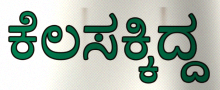
ಕೆಲಸಕ್ಕಿದ್ದ